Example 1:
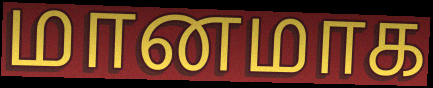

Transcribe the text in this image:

மானமாக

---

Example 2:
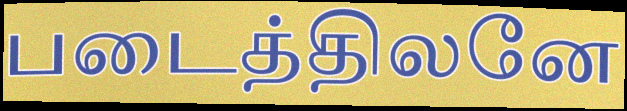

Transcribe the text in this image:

படைத்திலனே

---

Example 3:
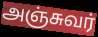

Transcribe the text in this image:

அஞ்சுவர்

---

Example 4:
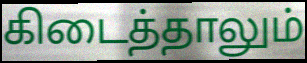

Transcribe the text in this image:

கிடைத்தாலும்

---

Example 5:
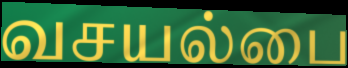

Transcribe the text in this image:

வசயல்பை